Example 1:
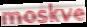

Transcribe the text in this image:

moskve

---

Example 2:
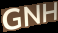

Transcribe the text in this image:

GNH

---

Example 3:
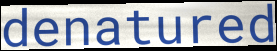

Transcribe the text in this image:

denatured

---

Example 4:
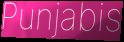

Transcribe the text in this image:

Punjabis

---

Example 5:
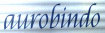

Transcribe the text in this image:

aurobindo